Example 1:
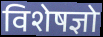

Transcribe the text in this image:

विशेषज्ञो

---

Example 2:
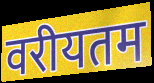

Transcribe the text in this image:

वरीयतम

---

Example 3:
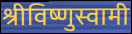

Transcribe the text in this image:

श्रीविष्णुस्वामी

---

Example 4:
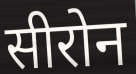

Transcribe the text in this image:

सीरोन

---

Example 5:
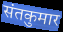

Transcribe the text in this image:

संतकुमार